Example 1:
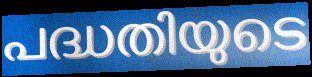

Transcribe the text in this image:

പദ്ധതിയുടെ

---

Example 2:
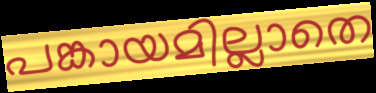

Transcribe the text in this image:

പങ്കായമില്ലാതെ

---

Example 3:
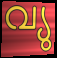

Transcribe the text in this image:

വ്യു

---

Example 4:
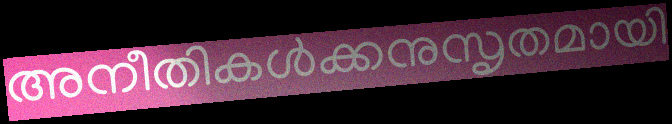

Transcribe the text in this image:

അനീതികൾക്കനുസൃതമായി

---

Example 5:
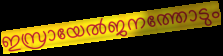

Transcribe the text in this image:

ഇസ്രായേൽജനത്തോടും